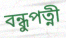
বন্ধুপত্নী